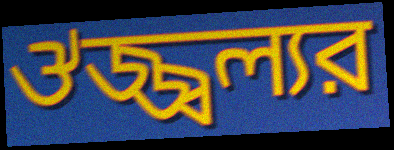
ঔজ্জ্বল্যর